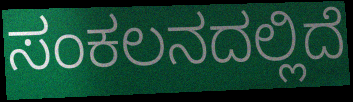
ಸಂಕಲನದಲ್ಲಿದೆ